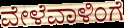
ವೇಳೆವಾಳಿಂಗೆ